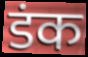
डंक